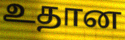
உதான